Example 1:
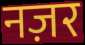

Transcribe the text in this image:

नज़र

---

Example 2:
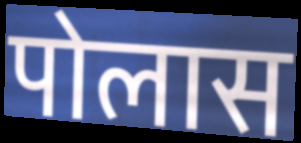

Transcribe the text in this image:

पोलास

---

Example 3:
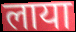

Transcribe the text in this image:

लाया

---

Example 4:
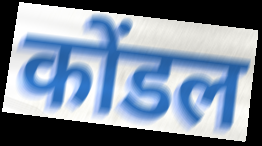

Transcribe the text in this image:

कोंडल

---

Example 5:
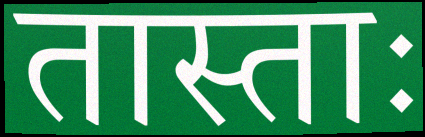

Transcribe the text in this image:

तास्ताः